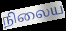
நிலைய